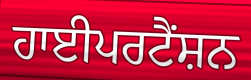
ਹਾਈਪਰਟੈਂਸ਼ਨ